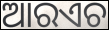
ଆରଏଚ